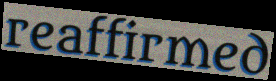
reaffirmed